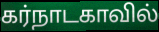
கர்நாடகாவில்